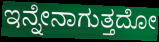
ಇನ್ನೇನಾಗುತ್ತದೋ